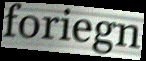
foriegn